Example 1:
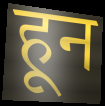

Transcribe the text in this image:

हून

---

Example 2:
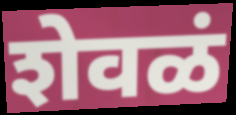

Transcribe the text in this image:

शेवळं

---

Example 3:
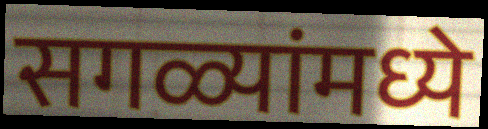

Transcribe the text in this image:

सगळ्यांमध्ये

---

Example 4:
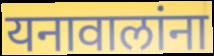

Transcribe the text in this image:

यनावालांना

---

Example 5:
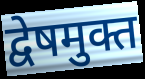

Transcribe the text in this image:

द्वेषमुक्त